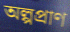
অল্পপ্রাণ